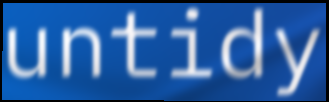
untidy